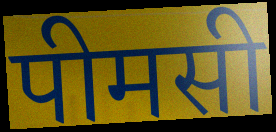
पीमसी